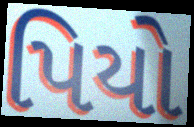
પિયો